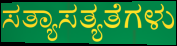
ಸತ್ಯಾಸತ್ಯತೆಗಳು